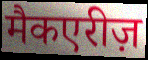
मैकएरीज़